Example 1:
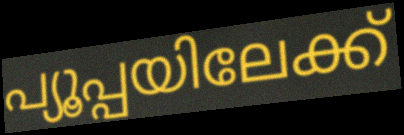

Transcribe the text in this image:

പ്യൂപ്പയിലേക്ക്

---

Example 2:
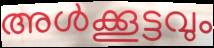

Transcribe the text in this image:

അൾക്കൂട്ടവും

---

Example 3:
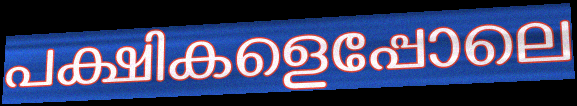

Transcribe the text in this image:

പക്ഷികളെപ്പോലെ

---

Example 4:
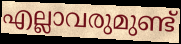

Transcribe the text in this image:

എല്ലാവരുമുണ്ട്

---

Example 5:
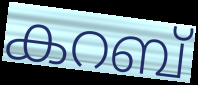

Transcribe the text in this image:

കറബ്